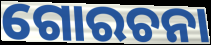
ଗୋରଚନା